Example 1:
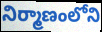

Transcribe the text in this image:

నిర్మాణంలోని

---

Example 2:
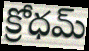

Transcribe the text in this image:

క్రోధమ్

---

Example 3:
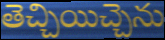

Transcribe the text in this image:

తెచ్చియిచ్చెను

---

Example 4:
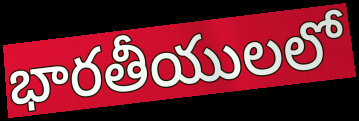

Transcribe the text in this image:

భారతీయులలో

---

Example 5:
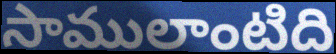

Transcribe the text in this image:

సాములాంటిది